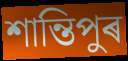
শান্তিপুৰ